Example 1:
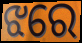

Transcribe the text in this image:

ଝରେ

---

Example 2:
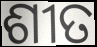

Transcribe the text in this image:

ଶୀତ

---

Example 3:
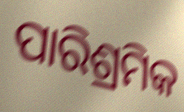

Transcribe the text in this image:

ପାରିଶ୍ରମିକ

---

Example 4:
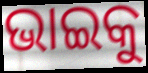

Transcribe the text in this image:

ଭାଇକୁ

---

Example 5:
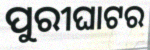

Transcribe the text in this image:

ପୁରୀଘାଟର